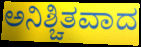
ಅನಿಶ್ಚಿತವಾದ